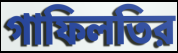
গাফিলতির